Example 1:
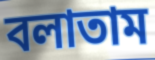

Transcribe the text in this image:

বলাতাম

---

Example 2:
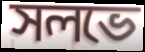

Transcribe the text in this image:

সলভে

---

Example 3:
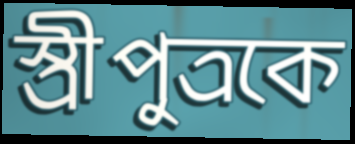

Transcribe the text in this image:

স্ত্রীপুত্রকে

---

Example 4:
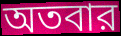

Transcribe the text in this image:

অতবার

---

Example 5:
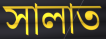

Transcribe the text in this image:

সালাত